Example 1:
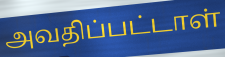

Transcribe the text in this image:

அவதிப்பட்டாள்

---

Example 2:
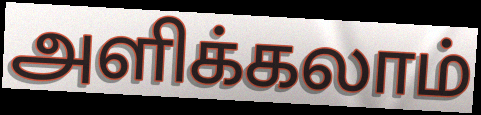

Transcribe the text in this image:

அளிக்கலாம்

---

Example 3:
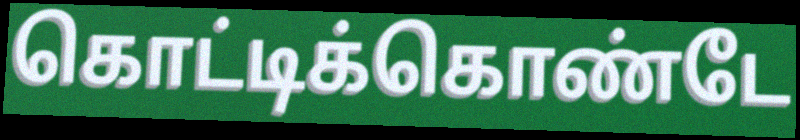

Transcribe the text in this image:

கொட்டிக்கொண்டே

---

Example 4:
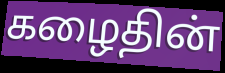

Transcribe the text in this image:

கழைதின்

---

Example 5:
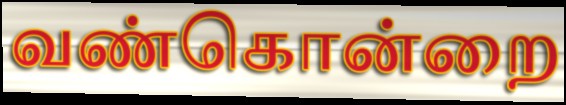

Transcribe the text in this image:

வண்கொன்றை